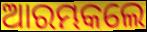
ଆରମ୍ଭକଲେ